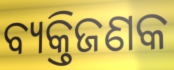
ବ୍ୟକ୍ତିଜଣକ